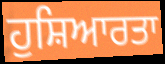
ਹੁਸ਼ਿਆਰਤਾ